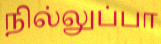
நில்லுப்பா